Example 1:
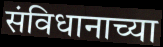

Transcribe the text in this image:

संविधानाच्या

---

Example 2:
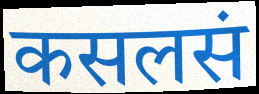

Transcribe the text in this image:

कसलसं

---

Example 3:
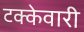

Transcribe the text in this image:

टक्केवारी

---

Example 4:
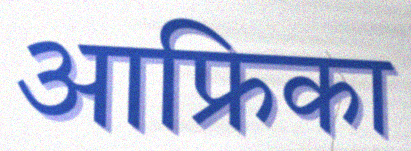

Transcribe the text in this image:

आफ्रिका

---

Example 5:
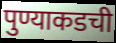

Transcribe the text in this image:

पुण्याकडची